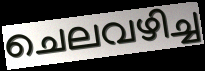
ചെലവഴിച്ച